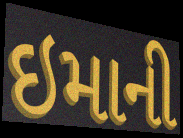
ઇમાની